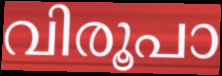
വിരൂപാ